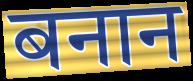
बनान